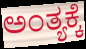
ಅಂತ್ಯಕ್ಕೆ